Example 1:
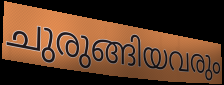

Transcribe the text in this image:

ചുരുങ്ങിയവരും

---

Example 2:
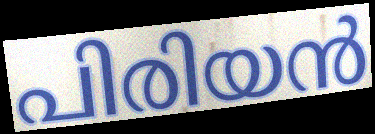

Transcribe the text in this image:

പിരിയൻ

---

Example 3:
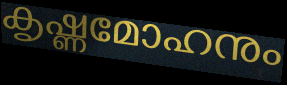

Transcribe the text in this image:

കൃഷ്ണമോഹനും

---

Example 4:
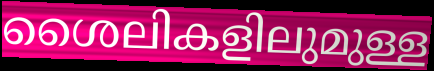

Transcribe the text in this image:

ശൈലികളിലുമുള്ള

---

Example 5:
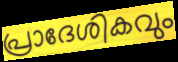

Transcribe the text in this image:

പ്രാദേശികവും